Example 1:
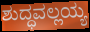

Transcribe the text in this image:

ಶುದ್ಧವಲ್ಲಯ್ಯ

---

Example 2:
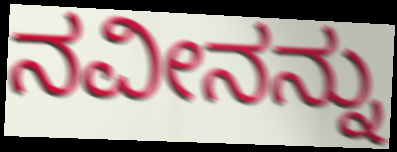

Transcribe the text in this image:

ನವೀನನ್ನು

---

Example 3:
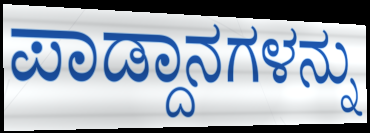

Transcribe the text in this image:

ಪಾಡ್ದಾನಗಳನ್ನು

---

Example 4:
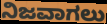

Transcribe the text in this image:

ನಿಜವಾಗಲು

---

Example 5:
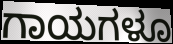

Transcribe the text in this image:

ಗಾಯಗಳೂ